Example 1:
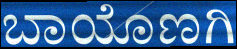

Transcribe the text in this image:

ಬಾಯೊಣಗಿ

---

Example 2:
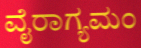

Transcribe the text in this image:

ವೈರಾಗ್ಯಮಂ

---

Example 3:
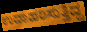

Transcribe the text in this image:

ಉದಾಹರಿಸುತ್ತಿದ್ದ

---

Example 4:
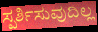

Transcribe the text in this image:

ಸ್ಪರ್ಶಿಸುವುದಿಲ್ಲ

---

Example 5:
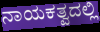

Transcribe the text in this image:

ನಾಯಕತ್ವದಲ್ಲಿ